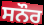
ਸਨੌਰ